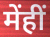
मेंहीं